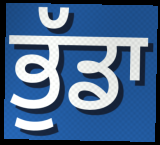
ਭੁੱਡਾ